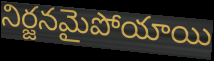
నిర్జనమైపోయాయి